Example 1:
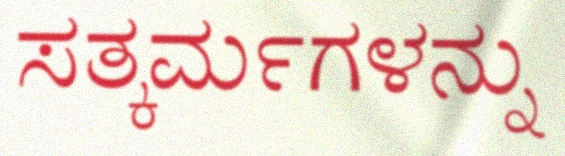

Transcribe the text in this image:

ಸತ್ಕರ್ಮಗಳನ್ನು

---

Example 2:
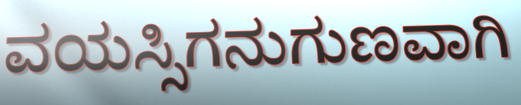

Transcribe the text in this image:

ವಯಸ್ಸಿಗನುಗುಣವಾಗಿ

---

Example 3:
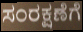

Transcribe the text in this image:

ಸಂರಕ್ಷಣೆಗೆ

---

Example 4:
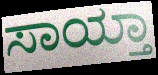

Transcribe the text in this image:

ಸಾಯ್ತಾ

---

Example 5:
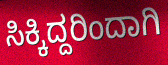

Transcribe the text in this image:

ಸಿಕ್ಕಿದ್ದರಿಂದಾಗಿ